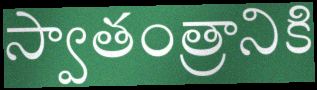
స్వాతంత్రానికి